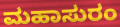
ಮಹಾಸುರಂ